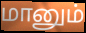
மானும்